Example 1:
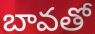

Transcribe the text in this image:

బావతో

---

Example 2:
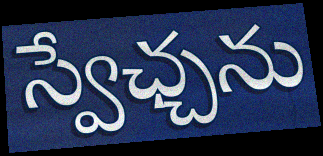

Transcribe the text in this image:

స్వేఛ్చను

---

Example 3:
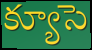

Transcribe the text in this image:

క్యూసె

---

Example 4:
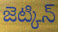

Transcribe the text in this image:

జెట్కిన్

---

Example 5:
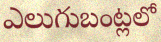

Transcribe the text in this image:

ఎలుగుబంట్లలో